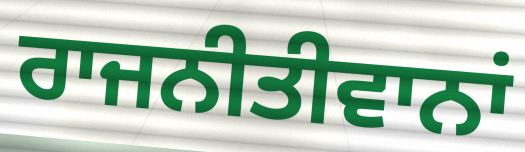
ਰਾਜਨੀਤੀਵਾਨਾਂ